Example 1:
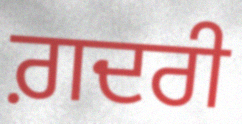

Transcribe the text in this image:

ਗ਼ਦਰੀ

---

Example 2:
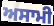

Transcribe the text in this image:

ਅਸਾਮੀ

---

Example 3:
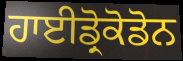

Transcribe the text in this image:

ਹਾਈਡ੍ਰੋਕੋਡੋਨ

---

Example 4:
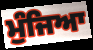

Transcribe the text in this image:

ਮੁੰਜਿਆ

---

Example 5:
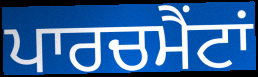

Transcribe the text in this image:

ਪਾਰਚਮੈਂਟਾਂ